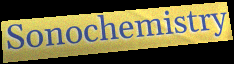
Sonochemistry